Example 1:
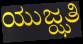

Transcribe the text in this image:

ಯುಜ್ಝತಿ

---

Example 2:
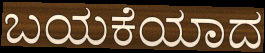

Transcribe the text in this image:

ಬಯಕೆಯಾದ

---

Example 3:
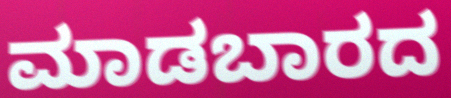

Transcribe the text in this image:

ಮಾಡಬಾರದ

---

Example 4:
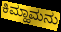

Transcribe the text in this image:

ಕಿಮ್ಹಾಮನು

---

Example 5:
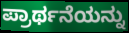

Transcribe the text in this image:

ಪ್ರಾರ್ಥನೆಯನ್ನು